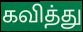
கவித்து